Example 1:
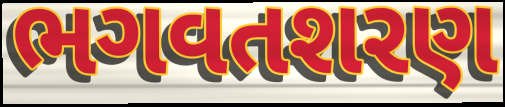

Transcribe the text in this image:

ભગવતશરણ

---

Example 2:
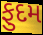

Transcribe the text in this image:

ફુદમ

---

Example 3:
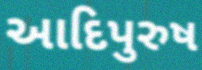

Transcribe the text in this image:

આદિપુરુષ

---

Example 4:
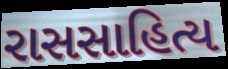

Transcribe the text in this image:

રાસસાહિત્ય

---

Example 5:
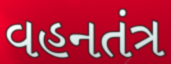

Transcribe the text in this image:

વહનતંત્ર